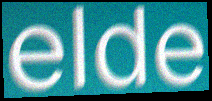
elde